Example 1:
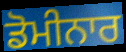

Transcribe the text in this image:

ਡੋਮੀਨਾਰ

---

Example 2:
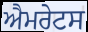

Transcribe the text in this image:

ਐਮਰੇਟਸ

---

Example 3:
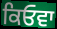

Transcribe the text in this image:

ਕਿਓਵਾ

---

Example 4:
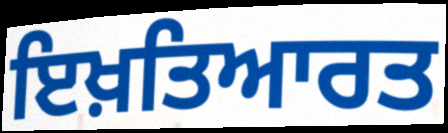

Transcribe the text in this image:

ਇਖ਼ਤਿਆਰਤ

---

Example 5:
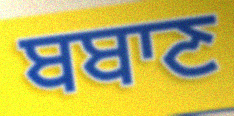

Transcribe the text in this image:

ਬਬਾਣ